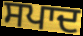
ਸਪਾਦ